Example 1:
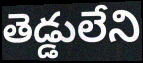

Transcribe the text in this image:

తెడ్డులేని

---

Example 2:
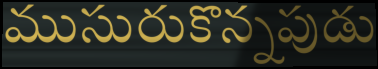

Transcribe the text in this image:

ముసురుకొన్నపుడు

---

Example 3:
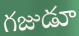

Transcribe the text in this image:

గజుడూ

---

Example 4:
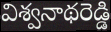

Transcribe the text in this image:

విశ్వనాథరెడ్డి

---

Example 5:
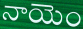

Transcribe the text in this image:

నాయెం